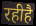
रहीहै